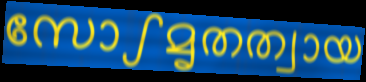
സോഽമൃതത്വായ